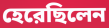
হেরেছিলেন